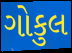
ગોકુલ